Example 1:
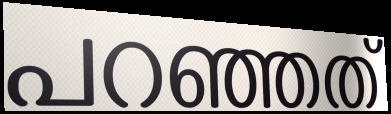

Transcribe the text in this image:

പറഞ്ഞത്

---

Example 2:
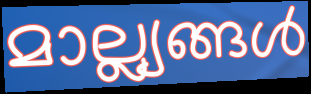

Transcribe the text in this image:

മാല്ല്യങ്ങൾ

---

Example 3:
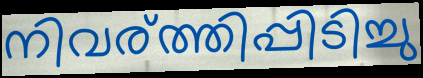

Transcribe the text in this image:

നിവര്ത്തിപ്പിടിച്ചു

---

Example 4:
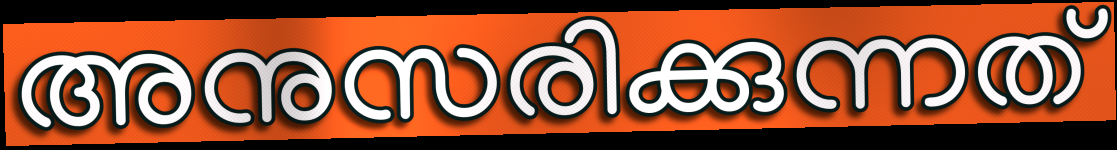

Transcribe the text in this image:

അനുസരിക്കുന്നത്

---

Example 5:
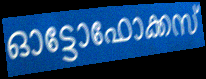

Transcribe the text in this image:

ഓട്ടോഫോക്കസ്